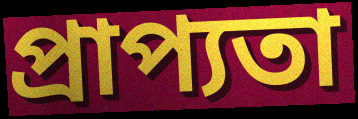
প্রাপ্যতা